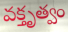
వక్తృత్వం